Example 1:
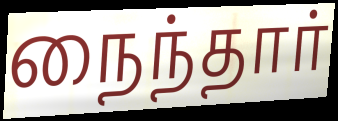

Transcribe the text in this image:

நைந்தார்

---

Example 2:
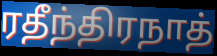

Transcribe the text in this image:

ரதீந்திரநாத்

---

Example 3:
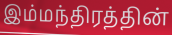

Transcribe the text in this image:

இம்மந்திரத்தின்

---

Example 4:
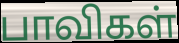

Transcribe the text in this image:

பாவிகள்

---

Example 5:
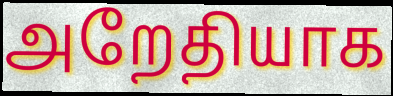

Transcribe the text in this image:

அறேதியாக